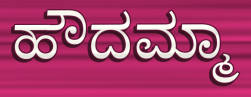
ಹೌದಮ್ಮಾ